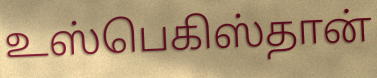
உஸ்பெகிஸ்தான்